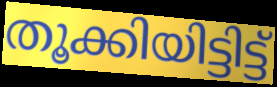
തൂക്കിയിട്ടിട്ട്